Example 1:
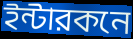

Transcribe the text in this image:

ইন্টারকনে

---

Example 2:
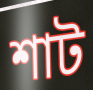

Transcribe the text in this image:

শাট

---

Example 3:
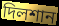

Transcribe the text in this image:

দিলশান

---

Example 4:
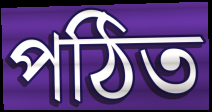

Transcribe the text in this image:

পঠিত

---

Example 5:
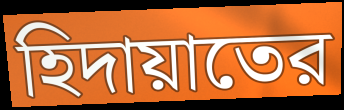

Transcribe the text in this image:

হিদায়াতের